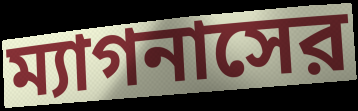
ম্যাগনাসের